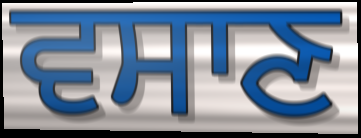
ਵਸਾਣ